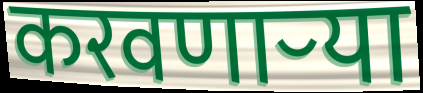
करवणाऱ्या